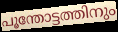
പൂന്തോട്ടത്തിനും